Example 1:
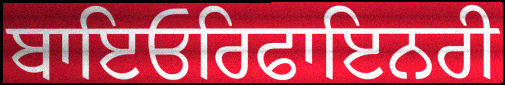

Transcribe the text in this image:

ਬਾਇਓਰਿਫਾਇਨਰੀ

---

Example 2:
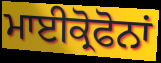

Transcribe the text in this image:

ਮਾਈਕ੍ਰੋਫੋਨਾਂ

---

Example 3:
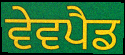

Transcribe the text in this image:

ਵੇਵਪੈਡ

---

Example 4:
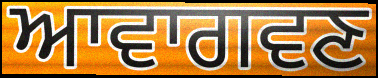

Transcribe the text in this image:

ਆਵਾਗਵਣ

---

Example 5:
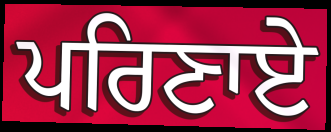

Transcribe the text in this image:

ਪਰਿਣਾਏ